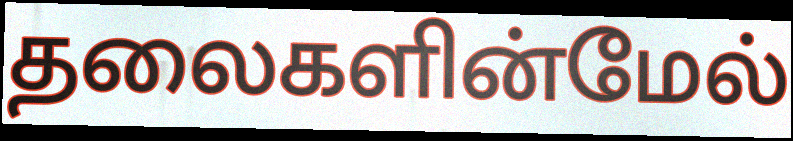
தலைகளின்மேல்